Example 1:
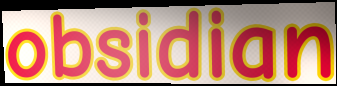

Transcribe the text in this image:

obsidian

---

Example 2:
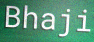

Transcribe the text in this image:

Bhaji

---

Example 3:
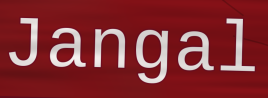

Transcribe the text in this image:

Jangal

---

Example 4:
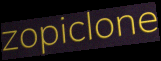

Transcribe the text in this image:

zopiclone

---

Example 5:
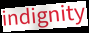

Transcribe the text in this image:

indignity